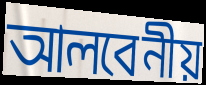
আলবেনীয়